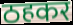
ठहकर